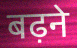
बढ़ने